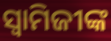
ସ୍ବାମିଜୀଙ୍କ